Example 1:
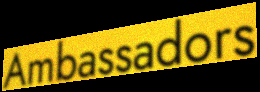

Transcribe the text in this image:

Ambassadors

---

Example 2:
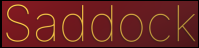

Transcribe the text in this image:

Saddock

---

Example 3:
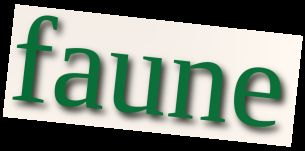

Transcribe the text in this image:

faune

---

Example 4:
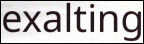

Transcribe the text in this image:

exalting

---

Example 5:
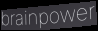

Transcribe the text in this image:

brainpower